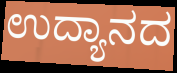
ಉದ್ಯಾನದ